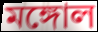
মঙ্গোল